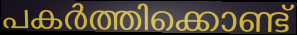
പകർത്തിക്കൊണ്ട്